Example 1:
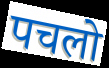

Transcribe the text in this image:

पचलो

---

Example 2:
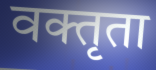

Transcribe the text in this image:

वक्तृता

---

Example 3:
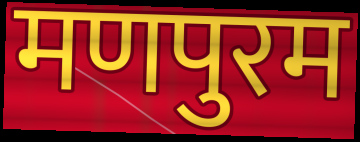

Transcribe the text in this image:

मणपुरम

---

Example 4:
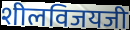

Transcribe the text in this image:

शीलविजयजी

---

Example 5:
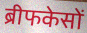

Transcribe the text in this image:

ब्रीफकेसों